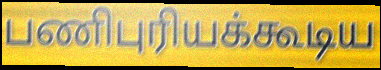
பணிபுரியக்கூடிய